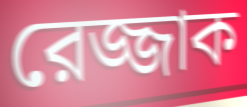
রেজ্জাক